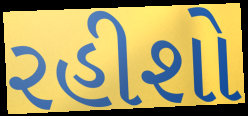
રહીશો